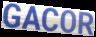
GACOR